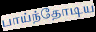
பாய்ந்தோடிய